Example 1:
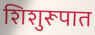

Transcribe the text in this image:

शिशुरूपात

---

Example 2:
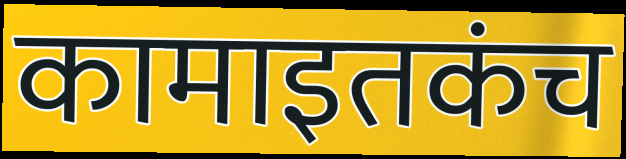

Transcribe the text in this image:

कामाइतकंच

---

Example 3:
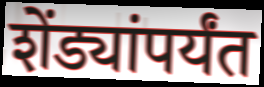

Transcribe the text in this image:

शेंड्यांपर्यंत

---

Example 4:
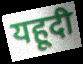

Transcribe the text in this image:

यहूदी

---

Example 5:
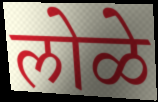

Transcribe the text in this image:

लोळे